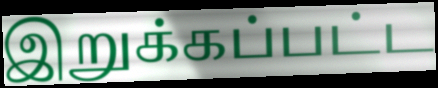
இறுக்கப்பட்ட